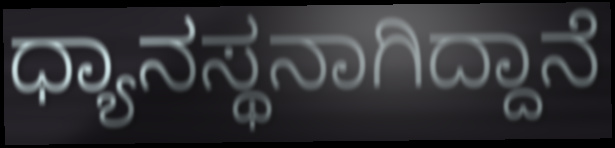
ಧ್ಯಾನಸ್ಥನಾಗಿದ್ದಾನೆ